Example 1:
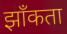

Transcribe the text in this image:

झाँकता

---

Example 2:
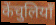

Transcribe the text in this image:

केंचुलियाँ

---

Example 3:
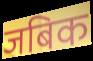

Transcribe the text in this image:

जबिक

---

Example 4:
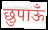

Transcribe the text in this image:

छुपाऊँ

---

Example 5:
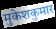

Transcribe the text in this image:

मुकेशकुमार